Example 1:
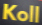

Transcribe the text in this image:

Koll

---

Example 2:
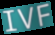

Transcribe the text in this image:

IVF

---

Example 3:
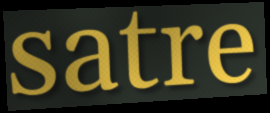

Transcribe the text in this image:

satre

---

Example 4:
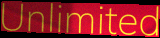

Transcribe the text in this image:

Unlimited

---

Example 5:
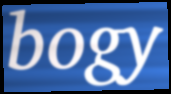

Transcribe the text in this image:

bogy